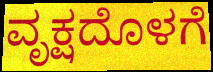
ವೃಕ್ಷದೊಳಗೆ